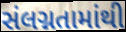
સંલગ્નતામાંથી